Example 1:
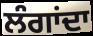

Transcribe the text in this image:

ਲੰਗਾਂਦਾ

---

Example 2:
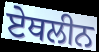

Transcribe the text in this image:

ਏਥਲੀਨ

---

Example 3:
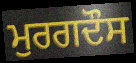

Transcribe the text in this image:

ਮੁਰਗਦੌਸ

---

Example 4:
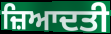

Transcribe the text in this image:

ਜ਼ਿਆਦਤੀ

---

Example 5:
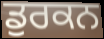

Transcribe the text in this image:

ਡੁਰਕਨ